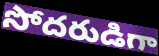
సోదరుడిగా